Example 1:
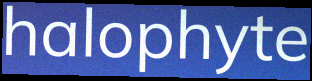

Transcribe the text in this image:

halophyte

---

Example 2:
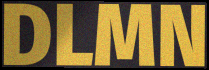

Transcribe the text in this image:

DLMN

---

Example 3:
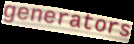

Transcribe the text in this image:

generators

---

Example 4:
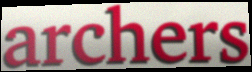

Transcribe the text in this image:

archers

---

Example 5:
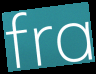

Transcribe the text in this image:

fra